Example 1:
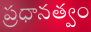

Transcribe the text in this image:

ప్రధానత్వం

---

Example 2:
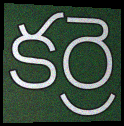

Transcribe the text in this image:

కర్రె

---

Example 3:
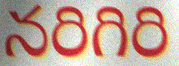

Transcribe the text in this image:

నరిగిరి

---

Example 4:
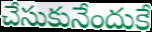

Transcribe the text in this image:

చేసుకునేందుకే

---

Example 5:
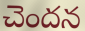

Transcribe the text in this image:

చెందన